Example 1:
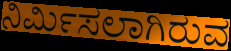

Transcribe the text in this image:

ನಿರ್ಮಿಸಲಾಗಿರುವ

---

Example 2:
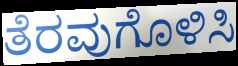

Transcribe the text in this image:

ತೆರವುಗೊಳಿಸಿ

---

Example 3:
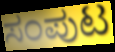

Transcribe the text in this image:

ಸಂಪುಟ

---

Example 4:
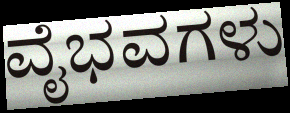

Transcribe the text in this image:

ವೈಭವಗಳು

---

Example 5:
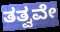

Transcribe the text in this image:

ತತ್ವವೇ